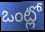
ఒంట్లో